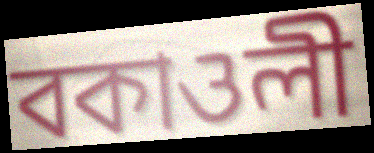
বকাওলী